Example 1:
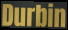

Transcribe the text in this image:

Durbin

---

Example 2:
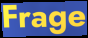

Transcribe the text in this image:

Frage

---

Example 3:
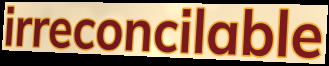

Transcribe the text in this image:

irreconcilable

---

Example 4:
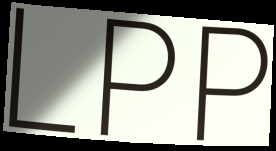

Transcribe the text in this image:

LPP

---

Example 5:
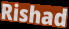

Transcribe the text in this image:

Rishad